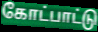
கோட்பாட்டு